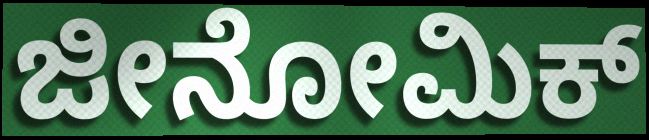
ಜೀನೋಮಿಕ್